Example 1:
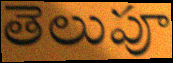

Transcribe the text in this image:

తెలుపూ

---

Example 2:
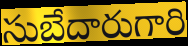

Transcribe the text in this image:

సుబేదారుగారి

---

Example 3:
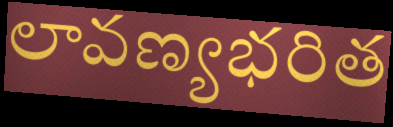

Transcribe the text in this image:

లావణ్యభరిత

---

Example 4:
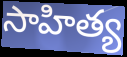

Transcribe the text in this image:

సాహిత్య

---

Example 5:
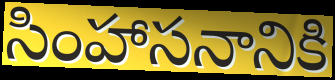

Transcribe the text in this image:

సింహాసనానికి